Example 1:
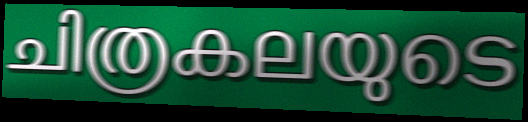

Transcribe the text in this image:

ചിത്രകലയുടെ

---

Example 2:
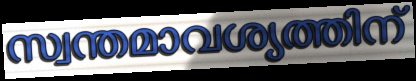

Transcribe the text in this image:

സ്വന്തമാവശ്യത്തിന്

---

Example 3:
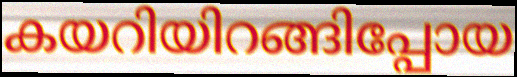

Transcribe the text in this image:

കയറിയിറങ്ങിപ്പോയ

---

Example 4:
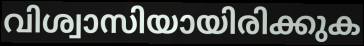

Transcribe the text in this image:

വിശ്വാസിയായിരിക്കുക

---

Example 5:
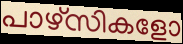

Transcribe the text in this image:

പാഴ്സികളോ